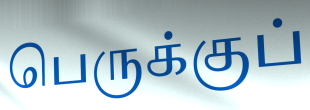
பெருக்குப்